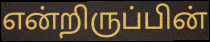
என்றிருப்பின்